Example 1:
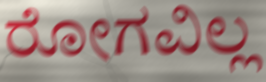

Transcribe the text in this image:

ರೋಗವಿಲ್ಲ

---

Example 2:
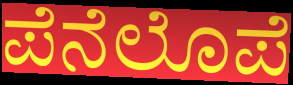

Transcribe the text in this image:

ಪೆನೆಲೊಪೆ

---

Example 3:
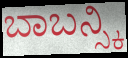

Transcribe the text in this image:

ಬಾಬನ್ಸ್ಕಿ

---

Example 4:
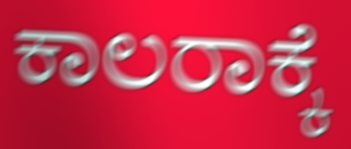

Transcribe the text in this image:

ಕಾಲರಾಕ್ಕೆ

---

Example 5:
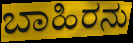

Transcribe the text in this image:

ಬಾಹಿರನು